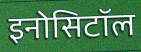
इनोसिटॉल